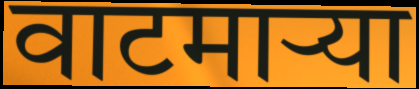
वाटमाऱ्या